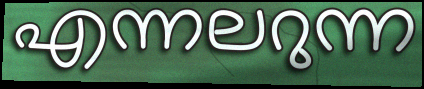
എന്നലറുന്ന